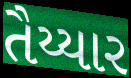
તૈય્યાર